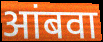
आंबवा